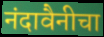
नंदावैनीचा